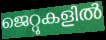
ജെറ്റുകളിൽ